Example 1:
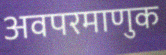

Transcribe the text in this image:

अवपरमाणुक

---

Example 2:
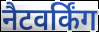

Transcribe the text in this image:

नैटवर्किंग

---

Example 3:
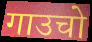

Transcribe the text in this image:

गाउचो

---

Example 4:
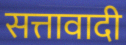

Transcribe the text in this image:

सत्तावादी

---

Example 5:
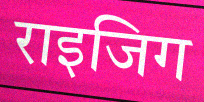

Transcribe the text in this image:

राइजिग